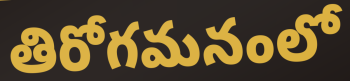
తిరోగమనంలో